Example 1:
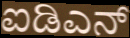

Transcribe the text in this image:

ಐಡಿಎನ್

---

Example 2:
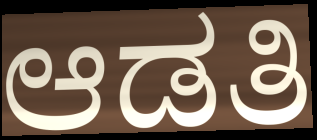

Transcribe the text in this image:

ಆಡತಿ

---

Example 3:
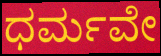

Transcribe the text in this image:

ಧರ್ಮವೇ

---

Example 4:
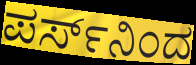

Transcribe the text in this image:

ಪರ್ಸ್‌ನಿಂದ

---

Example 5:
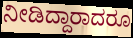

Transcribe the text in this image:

ನೀಡಿದ್ದಾರಾದರೂ